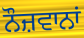
ਨੌਜ਼ਵਾਨਾਂ